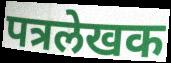
पत्रलेखक